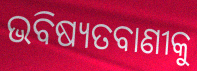
ଭବିଷ୍ୟତବାଣୀକୁ